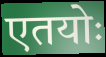
एतयोः